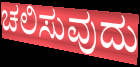
ಚಲಿಸುವುದು